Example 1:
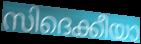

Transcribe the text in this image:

സിദെക്കീയാ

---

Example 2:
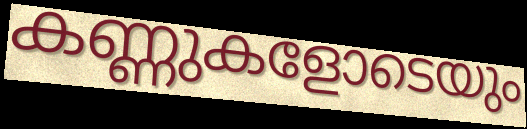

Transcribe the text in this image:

കണ്ണുകളോടെയും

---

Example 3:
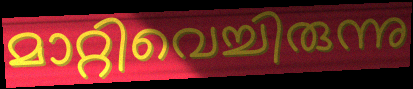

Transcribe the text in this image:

മാറ്റിവെച്ചിരുന്നു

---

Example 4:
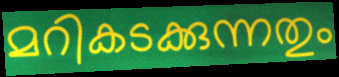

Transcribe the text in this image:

മറികടക്കുന്നതും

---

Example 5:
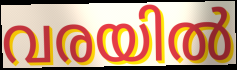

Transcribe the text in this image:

വരയിൽ